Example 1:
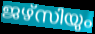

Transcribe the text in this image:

ജഴ്സിയും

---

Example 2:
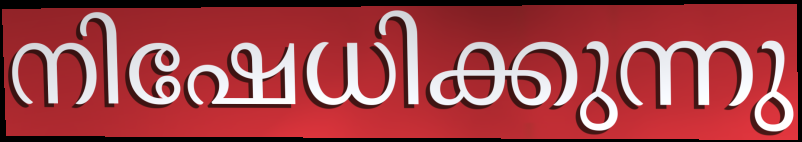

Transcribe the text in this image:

നിഷേധിക്കുന്നു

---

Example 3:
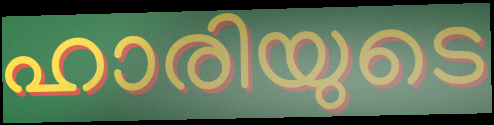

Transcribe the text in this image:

ഹാരിയുടെ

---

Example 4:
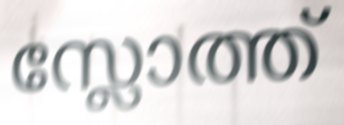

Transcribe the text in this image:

സ്ലോത്ത്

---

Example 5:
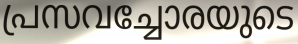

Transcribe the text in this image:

പ്രസവച്ചോരയുടെ